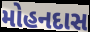
મોહનદાસ